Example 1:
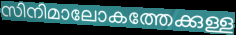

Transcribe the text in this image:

സിനിമാലോകത്തേക്കുള്ള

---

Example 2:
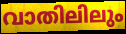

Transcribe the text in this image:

വാതിലിലും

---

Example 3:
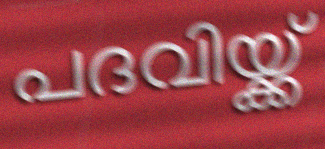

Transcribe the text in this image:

പദവിയ്ക്ക്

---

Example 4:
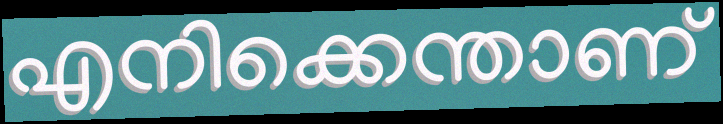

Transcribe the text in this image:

എനിക്കെന്താണ്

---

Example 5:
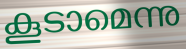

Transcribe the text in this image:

കൂടാമെന്നു